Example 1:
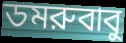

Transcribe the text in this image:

ডমরুবাবু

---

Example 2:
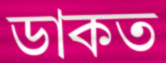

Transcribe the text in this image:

ডাকত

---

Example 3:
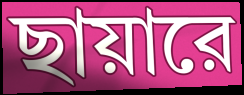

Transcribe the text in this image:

ছায়ারে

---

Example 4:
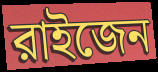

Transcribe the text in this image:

রাইজেন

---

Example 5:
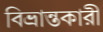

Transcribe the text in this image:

বিভ্রান্তকারী